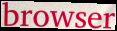
browser